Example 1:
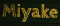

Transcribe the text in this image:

Miyake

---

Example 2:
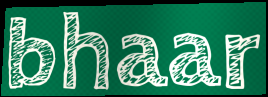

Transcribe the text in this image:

bhaar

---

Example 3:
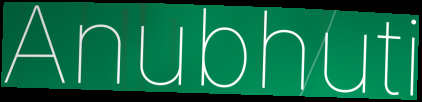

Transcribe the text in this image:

Anubhuti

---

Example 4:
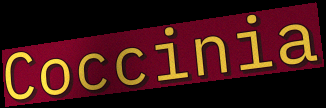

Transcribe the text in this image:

Coccinia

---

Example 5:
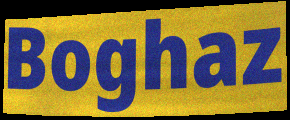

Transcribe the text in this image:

Boghaz